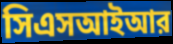
সিএসআইআর